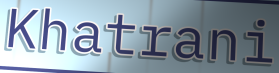
Khatrani